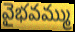
వైభవమ్ము